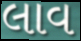
લાવ